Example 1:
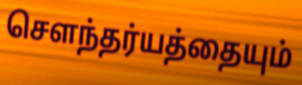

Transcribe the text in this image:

சௌந்தர்யத்தையும்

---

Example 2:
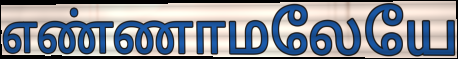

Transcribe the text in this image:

எண்ணாமலேயே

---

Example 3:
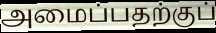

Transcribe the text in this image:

அமைப்பதற்குப்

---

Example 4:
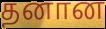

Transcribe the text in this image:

தனான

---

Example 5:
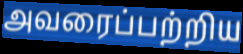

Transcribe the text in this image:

அவரைப்பற்றிய